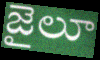
జైలూ